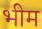
भीम